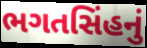
ભગતસિંહનું